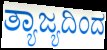
ತ್ಯಾಜ್ಯದಿಂದ